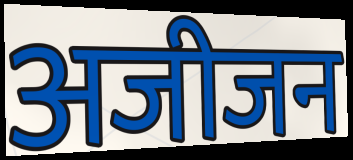
अजीजन